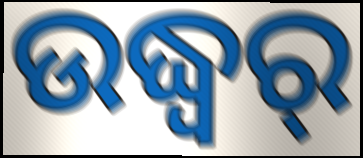
ଉଦ୍ଧ୍ୱର୍